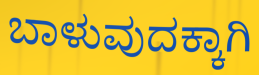
ಬಾಳುವುದಕ್ಕಾಗಿ